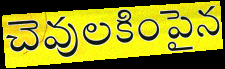
చెవులకింపైన